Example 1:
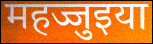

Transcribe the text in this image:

महज्जुइया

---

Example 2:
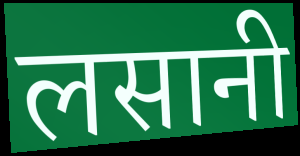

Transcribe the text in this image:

लसानी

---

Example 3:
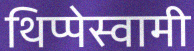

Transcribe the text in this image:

थिप्पेस्वामी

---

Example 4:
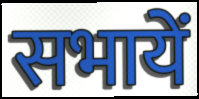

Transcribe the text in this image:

सभायें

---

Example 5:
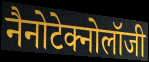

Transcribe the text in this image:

नैनोटेक्नोलॉजी